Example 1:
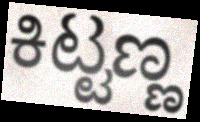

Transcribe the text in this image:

ಕಿಟ್ಟಣ್ಣ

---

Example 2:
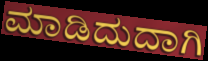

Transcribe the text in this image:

ಮಾಡಿದುದಾಗಿ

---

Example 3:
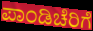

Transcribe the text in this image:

ಪಾಂಡಿಚೆರಿಗೆ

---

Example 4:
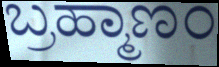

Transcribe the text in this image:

ಬ್ರಹ್ಮಾಣಂ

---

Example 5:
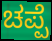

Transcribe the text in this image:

ಚಪ್ಪೆ